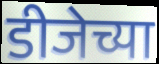
डीजेच्या